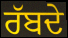
ਰੱਬਦੇ